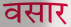
वसार